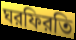
ঘরফিরতি